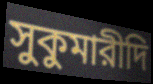
সুকুমারীদি